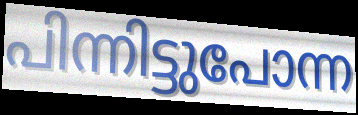
പിന്നിട്ടുപോന്ന